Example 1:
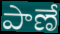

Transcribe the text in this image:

పాణే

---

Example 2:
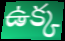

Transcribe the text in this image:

ఉక్క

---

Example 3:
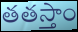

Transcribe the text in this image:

తతస్తాం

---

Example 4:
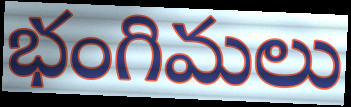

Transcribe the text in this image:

భంగిమలు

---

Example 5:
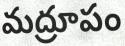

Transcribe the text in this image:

మద్రూపం